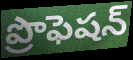
ప్రొఫెషన్